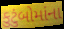
કુટુંબોમાંના